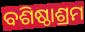
ବଶିଷ୍ଠାଶ୍ରମ